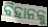
ବିହାନକୁ